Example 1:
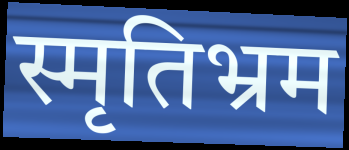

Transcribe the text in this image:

स्मृतिभ्रम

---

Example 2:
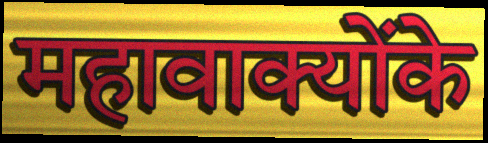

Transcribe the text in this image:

महावाक्योंके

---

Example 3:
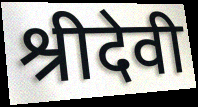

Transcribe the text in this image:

श्रीदेवी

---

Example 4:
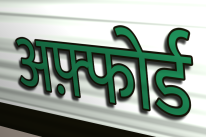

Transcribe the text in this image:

अफ़्फोर्ड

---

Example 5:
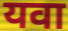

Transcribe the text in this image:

यवा